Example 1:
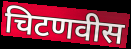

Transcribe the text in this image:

चिटणवीस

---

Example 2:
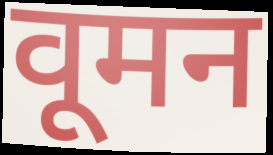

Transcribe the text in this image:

वूमन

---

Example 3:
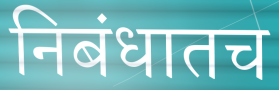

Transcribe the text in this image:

निबंधातच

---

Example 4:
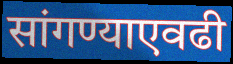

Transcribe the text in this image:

सांगण्याएवढी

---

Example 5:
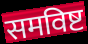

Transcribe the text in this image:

समविष्ट